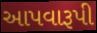
આપવારૂપી